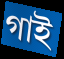
গাই